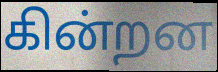
கின்றன